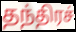
தந்திரச்